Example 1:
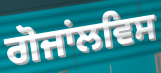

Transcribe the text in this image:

ਗੋਜਾਂਲਵਿਸ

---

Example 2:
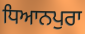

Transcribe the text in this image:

ਧਿਆਨਪੁਰਾ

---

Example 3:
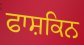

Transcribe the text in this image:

ਫਾਸ਼ਕਿਨ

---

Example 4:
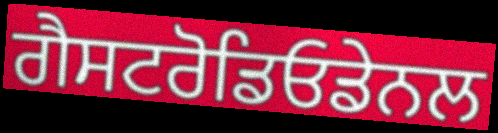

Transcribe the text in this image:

ਗੈਸਟਰੋਡਿਓਡੇਨਲ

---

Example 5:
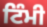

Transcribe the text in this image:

ਟਿੰਮੀ